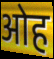
ओह